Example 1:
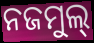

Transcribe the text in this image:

ନଜମୁଲ୍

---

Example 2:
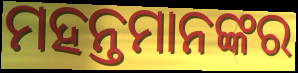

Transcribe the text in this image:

ମହନ୍ତମାନଙ୍କର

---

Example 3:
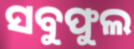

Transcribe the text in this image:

ସବୁଫୁଲ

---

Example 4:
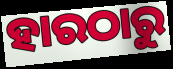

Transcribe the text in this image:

ହାରଠାରୁ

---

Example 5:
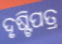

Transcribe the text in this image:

ଦୃଷ୍ଟିପତ୍ର